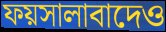
ফয়সালাবাদেও